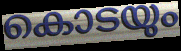
കൊടയും